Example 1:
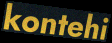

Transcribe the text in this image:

kontehi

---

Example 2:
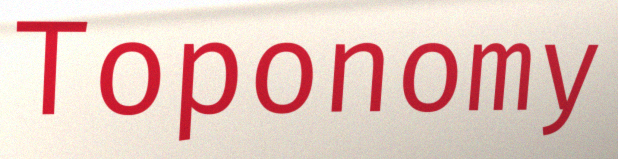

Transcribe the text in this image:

Toponomy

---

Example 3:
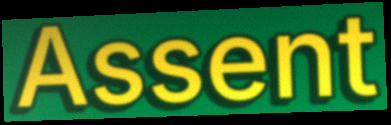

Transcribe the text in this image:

Assent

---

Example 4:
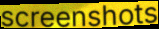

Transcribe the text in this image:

screenshots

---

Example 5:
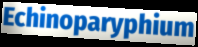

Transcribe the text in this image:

Echinoparyphium